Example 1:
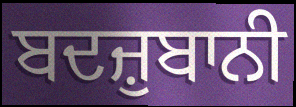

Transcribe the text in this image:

ਬਦਜ਼ੁਬਾਨੀ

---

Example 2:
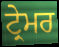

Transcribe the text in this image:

ਟ੍ਰੇਮਰ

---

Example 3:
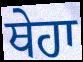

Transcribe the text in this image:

ਥੇਹਾ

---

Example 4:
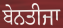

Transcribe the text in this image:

ਬੇਨਤੀਜਾ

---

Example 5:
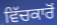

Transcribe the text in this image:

ਵਿੱਚਕਾਰੋਂ